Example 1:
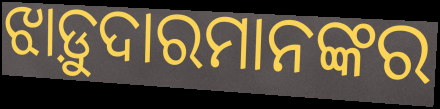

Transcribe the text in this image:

ଝାଡ଼ୁଦାରମାନଙ୍କର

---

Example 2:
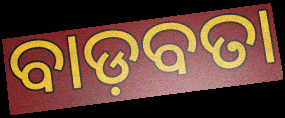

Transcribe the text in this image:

ବାଡ଼ବତା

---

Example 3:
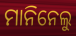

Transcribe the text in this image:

ମାନିନେଲୁ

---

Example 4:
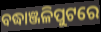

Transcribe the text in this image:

ବଦ୍ଧାଞ୍ଜଳିପୁଟରେ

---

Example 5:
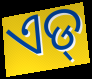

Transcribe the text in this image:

ଏଡ୍